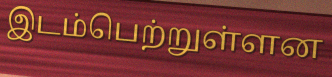
இடம்பெற்றுள்ளன